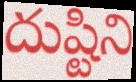
దుష్టిని